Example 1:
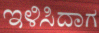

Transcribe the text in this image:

ಇಳಿಸಿದಾಗ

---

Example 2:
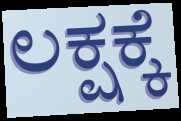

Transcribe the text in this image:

ಲಕ್ಷಕ್ಕೆ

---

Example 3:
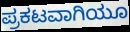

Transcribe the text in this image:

ಪ್ರಕಟವಾಗಿಯೂ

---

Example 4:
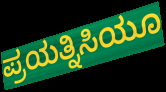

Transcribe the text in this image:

ಪ್ರಯತ್ನಿಸಿಯೂ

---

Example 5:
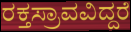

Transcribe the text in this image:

ರಕ್ತಸ್ರಾವವಿದ್ದರೆ